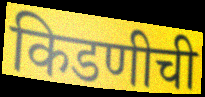
किडणीची